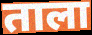
ताला